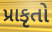
પ્રાકૃતો